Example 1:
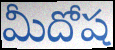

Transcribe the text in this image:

మీదోష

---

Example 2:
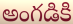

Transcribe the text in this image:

అంగడికి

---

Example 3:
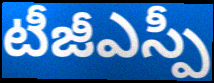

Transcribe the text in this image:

టీజీఎస్పీ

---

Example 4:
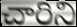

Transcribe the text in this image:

చారిని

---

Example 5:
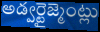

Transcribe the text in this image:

అడ్వర్టైజ్మెంట్లు